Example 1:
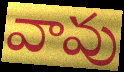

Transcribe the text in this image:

వావు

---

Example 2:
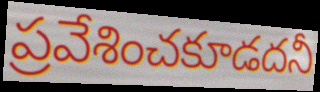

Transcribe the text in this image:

ప్రవేశించకూడదనీ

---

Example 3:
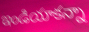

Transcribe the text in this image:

ఇండియాకన్నా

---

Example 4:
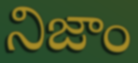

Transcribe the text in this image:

నిజాం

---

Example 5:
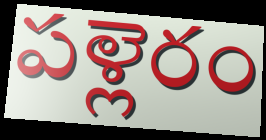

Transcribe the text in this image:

పళ్లెరం